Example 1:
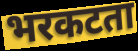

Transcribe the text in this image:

भरकटता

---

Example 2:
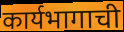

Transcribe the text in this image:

कार्यभागाची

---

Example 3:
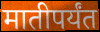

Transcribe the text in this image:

मातीपर्यंत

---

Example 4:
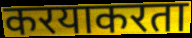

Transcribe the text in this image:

करयाकरता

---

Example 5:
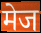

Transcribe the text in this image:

मेज